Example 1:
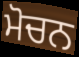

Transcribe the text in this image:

ਮੋਚਨ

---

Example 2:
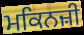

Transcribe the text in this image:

ਮਕਿਨਜ਼ੀ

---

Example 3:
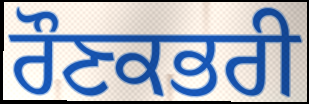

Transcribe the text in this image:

ਰੌਣਕਭਰੀ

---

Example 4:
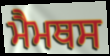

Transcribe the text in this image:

ਮੈਮਥਸ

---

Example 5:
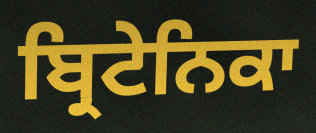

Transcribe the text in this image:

ਬ੍ਰਿਟੇਨਿਕਾ